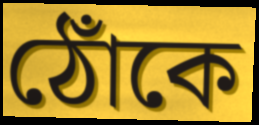
ঠোঁকে